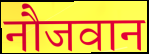
नौजवान